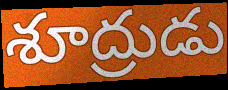
శూద్రుడు